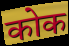
कोक